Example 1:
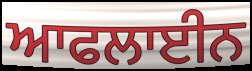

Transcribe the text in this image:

ਆਫਲਾਈਨ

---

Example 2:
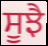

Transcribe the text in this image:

ਸੂਝੈ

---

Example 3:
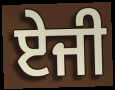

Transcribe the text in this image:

ਏਜੀ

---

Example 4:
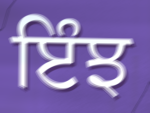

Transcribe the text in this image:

ਇੰਝ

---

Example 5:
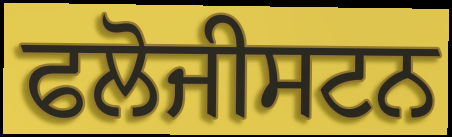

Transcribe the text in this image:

ਫਲੋਜੀਸਟਨ